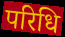
परिधि